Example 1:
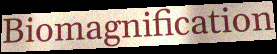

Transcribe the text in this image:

Biomagnification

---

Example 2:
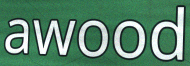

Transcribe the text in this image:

awood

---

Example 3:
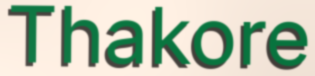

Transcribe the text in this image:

Thakore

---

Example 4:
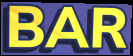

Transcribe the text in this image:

BAR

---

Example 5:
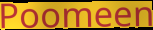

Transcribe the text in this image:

Poomeen